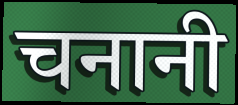
चनानी